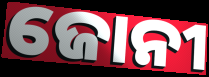
ଜୋନୀ